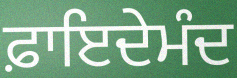
ਫ਼ਾਇਦੇਮੰਦ